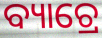
ବ୍ୟାଚ୍ରେ